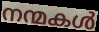
നന്മകൾ